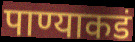
पाण्याकडं